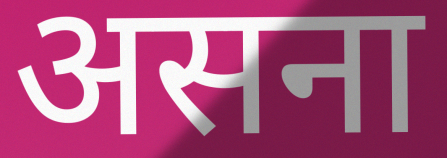
असना